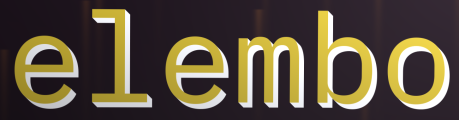
elembo